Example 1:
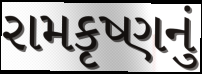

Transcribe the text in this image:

રામકૃષ્ણનું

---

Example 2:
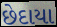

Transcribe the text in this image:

છેદાયા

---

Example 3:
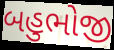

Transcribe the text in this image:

બહુભોજી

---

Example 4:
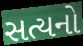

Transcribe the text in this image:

સત્યનો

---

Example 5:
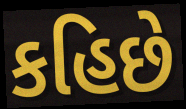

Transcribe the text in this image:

કહિછે